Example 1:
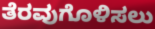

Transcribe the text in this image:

ತೆರವುಗೊಳಿಸಲು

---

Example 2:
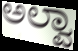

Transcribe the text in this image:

ಅಲ್ವಾ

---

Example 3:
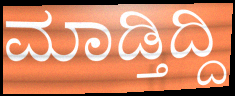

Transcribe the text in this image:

ಮಾಡ್ತಿದ್ದಿ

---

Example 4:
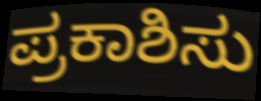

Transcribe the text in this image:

ಪ್ರಕಾಶಿಸು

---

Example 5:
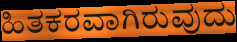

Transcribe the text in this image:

ಹಿತಕರವಾಗಿರುವುದು